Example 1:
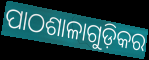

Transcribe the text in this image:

ପାଠଶାଳାଗୁଡ଼ିକର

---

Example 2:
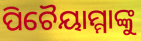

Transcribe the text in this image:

ପିଚୈୟାମ୍ମାଙ୍କୁ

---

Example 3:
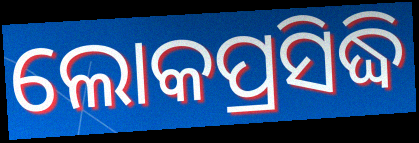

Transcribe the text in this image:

ଲୋକପ୍ରସିଦ୍ଧି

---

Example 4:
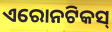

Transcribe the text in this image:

ଏରୋନଟିକସ୍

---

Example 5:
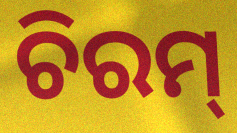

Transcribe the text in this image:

ଚିରମ୍